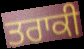
ਤਰਾਕੀ